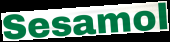
Sesamol